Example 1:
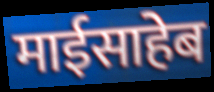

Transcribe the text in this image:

माईसाहेब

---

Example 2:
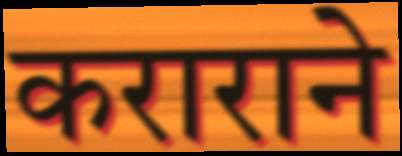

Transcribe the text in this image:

कराराने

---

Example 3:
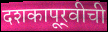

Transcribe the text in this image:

दशकापूर्वीची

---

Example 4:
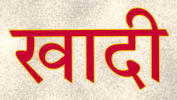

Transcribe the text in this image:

खादी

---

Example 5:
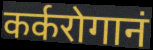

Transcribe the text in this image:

कर्करोगानं